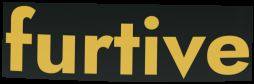
furtive